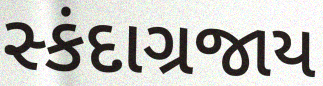
સ્કંદાગ્રજાય